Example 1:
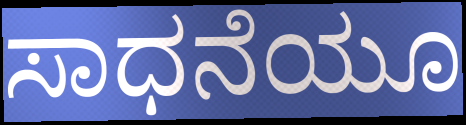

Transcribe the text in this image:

ಸಾಧನೆಯೂ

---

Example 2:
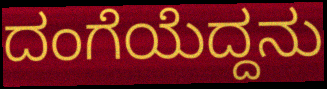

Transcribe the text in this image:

ದಂಗೆಯೆದ್ದನು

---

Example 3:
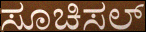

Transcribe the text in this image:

ಸೂಚಿಸಲ್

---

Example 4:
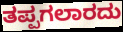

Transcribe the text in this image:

ತಪ್ಪಗಲಾರದು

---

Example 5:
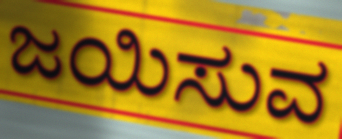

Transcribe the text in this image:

ಜಯಿಸುವ